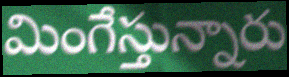
మింగేస్తున్నారు